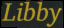
Libby